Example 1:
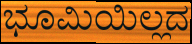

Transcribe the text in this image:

ಭೂಮಿಯಿಲ್ಲದ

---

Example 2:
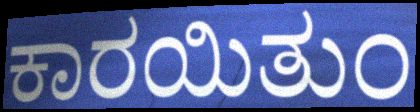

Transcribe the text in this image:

ಕಾರಯಿತುಂ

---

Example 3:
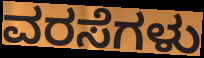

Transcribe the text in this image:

ವರಸೆಗಳು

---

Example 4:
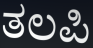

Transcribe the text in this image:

ತಲಪಿ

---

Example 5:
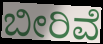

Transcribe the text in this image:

ಬೀರಿವೆ